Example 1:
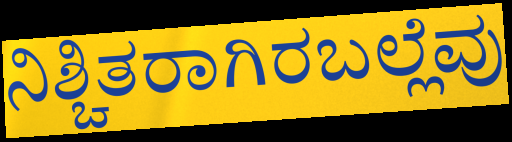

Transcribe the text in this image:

ನಿಶ್ಚಿತರಾಗಿರಬಲ್ಲೆವು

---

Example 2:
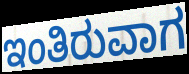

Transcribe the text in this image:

ಇಂತಿರುವಾಗ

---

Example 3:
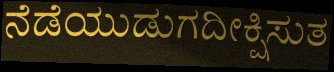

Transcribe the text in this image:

ನೆಡೆಯುಡುಗದೀಕ್ಷಿಸುತ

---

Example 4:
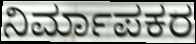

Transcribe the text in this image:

ನಿರ್ಮಾಪಕರ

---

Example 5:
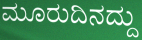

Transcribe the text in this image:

ಮೂರುದಿನದ್ದು